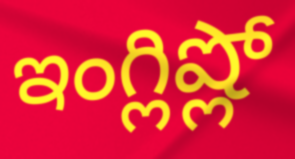
ఇంగ్లిష్లో